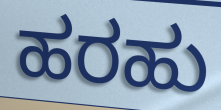
ಹರಹು